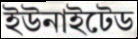
ইউনাইটেড